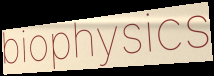
biophysics